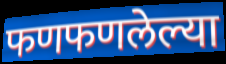
फणफणलेल्या